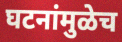
घटनांमुळेच